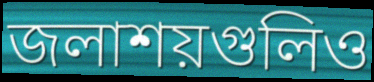
জলাশয়গুলিও